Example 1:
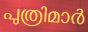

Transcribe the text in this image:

പുത്രിമാർ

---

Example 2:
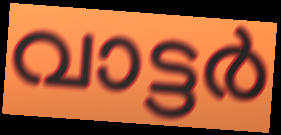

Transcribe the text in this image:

വാട്ടർ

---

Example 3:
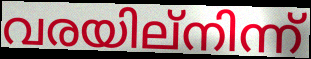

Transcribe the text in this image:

വരയില്നിന്ന്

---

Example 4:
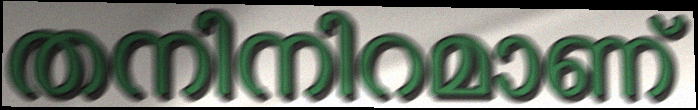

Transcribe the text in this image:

തനിനിറമാണ്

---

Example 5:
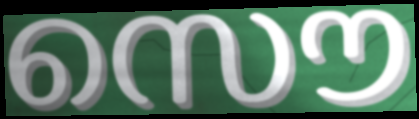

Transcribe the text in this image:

സൌ